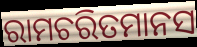
ରାମଚରିତମାନସ